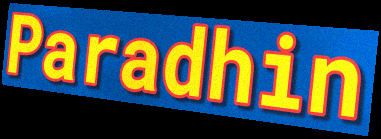
Paradhin